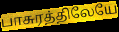
பாசுரத்திலேயே